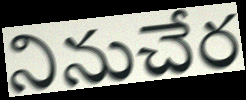
నినుచేర